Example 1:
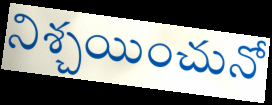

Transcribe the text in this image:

నిశ్చయించునో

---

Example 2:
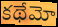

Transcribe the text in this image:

కథేమో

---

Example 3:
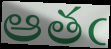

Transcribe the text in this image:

ఆతఁ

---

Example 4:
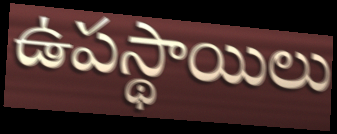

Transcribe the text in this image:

ఉపస్థాయిలు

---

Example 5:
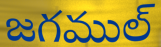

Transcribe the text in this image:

జగముల్